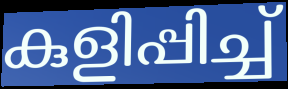
കുളിപ്പിച്ച്